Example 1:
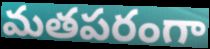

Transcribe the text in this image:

మతపరంగా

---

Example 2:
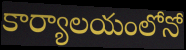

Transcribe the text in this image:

కార్యాలయంలోనో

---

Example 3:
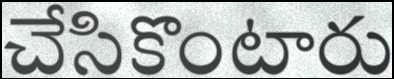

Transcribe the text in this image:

చేసికొంటారు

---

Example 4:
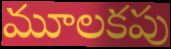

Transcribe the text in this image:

మూలకపు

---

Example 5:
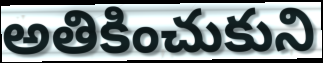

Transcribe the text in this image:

అతికించుకుని